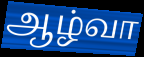
ஆழ்வா